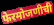
फेरमोजणीची